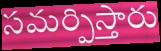
సమర్పిస్తారు